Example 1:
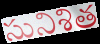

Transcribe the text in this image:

సునిశిత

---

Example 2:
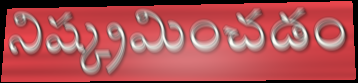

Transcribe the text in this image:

నిష్క్రమించడం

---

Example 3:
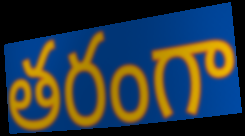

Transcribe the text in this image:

తరంగా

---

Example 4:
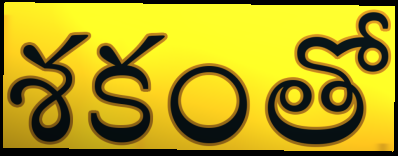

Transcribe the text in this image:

శకంతో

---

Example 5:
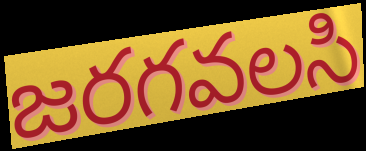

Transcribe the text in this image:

జరగవలసి